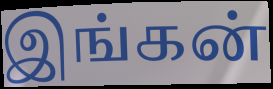
இங்கன்